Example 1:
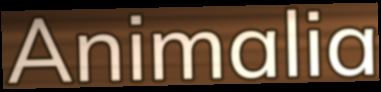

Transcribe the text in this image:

Animalia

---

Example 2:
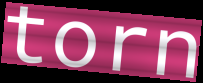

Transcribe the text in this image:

torn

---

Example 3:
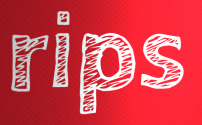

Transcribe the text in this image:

rips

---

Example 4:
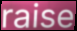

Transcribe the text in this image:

raise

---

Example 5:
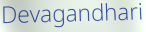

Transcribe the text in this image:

Devagandhari